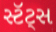
સ્ટૅટ્સ